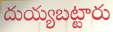
దుయ్యబట్టారు